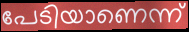
പേടിയാണെന്ന്